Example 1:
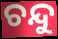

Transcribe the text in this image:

ଚନ୍ଦୁ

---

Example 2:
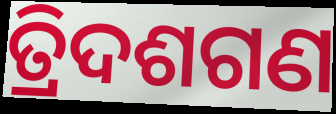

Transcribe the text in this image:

ତ୍ରିଦଶଗଣ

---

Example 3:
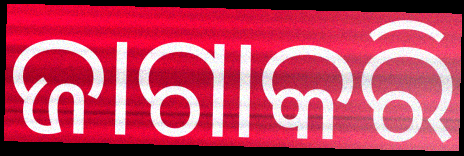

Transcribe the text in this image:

ଜାଗାକରି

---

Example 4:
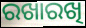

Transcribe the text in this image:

ରଖାରଖି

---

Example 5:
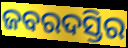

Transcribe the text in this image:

ଜବରଦସ୍ତିର